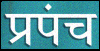
प्रपंच